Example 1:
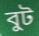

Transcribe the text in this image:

বুট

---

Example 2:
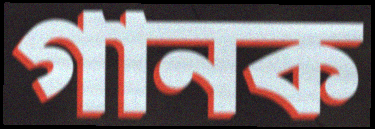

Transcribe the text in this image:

গানক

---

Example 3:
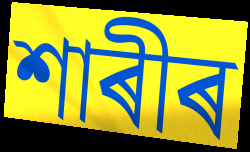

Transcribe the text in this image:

শাৰীৰ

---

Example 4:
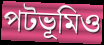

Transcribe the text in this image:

পটভূমিও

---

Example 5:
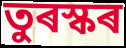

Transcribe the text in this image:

তুৰস্কৰ